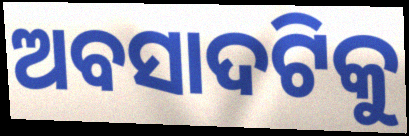
ଅବସାଦଟିକୁ